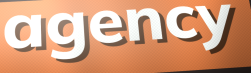
agency